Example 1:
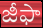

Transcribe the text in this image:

జీఫా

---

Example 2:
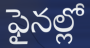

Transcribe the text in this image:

ఫైనల్లో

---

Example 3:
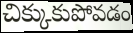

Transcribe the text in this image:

చిక్కుకుపోవడం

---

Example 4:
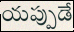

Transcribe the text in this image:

యప్పుడే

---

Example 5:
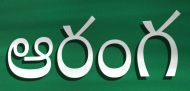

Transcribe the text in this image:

ఆరంగ